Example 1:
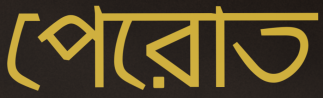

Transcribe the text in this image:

পেরোত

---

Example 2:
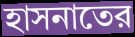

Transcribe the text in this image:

হাসনাতের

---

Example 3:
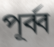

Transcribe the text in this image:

পূর্ব্ব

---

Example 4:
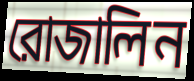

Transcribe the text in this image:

রোজালিন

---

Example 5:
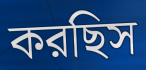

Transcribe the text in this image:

করছিস